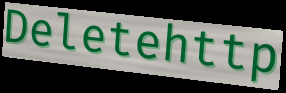
Deletehttp